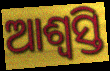
ଆଶ୍ଵସ୍ତି